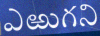
ఎఱుగని